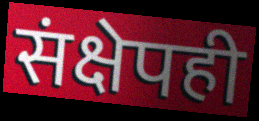
संक्षेपही